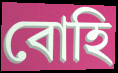
বোহি